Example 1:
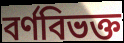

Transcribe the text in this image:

বর্ণবিভক্ত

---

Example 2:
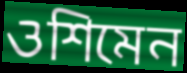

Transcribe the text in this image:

ওশিমেন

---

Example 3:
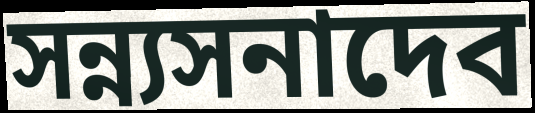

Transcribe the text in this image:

সন্ন্যসনাদেব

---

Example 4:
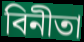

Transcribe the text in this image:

বিনীতা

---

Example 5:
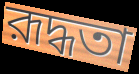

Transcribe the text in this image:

রূদ্ধতা